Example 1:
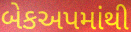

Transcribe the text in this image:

બેકઅપમાંથી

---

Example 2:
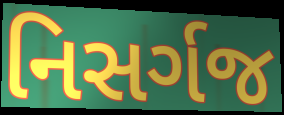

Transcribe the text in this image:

નિસર્ગજ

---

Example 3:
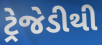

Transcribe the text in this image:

ટ્રેજેડીથી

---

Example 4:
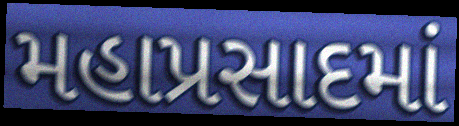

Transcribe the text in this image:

મહાપ્રસાદમાં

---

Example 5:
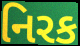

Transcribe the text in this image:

નિરક